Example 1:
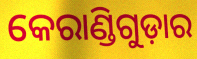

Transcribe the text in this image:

କେରାଣ୍ଡିଗୁଡ଼ାର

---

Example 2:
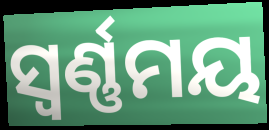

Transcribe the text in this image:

ସ୍ଵର୍ଣ୍ଣମୟ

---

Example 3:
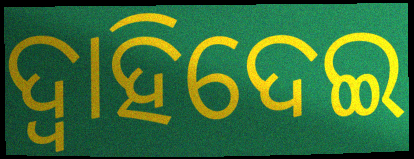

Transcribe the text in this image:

ଦ୍ୱାହିଦେଇ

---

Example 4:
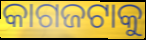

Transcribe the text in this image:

କାଗଜଟାକୁ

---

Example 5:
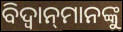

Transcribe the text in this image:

ବିଦ୍ଵାନ୍‌ମାନଙ୍କୁ